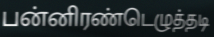
பன்னிரண்டெழுத்தடி